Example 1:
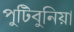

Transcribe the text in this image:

পুটিবুনিয়া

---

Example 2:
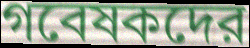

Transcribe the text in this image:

গবেষকদের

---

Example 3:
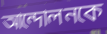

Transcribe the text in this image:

আন্দোলনকে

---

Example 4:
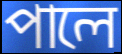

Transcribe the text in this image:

পালে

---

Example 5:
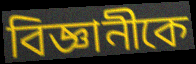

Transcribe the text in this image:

বিজ্ঞানীকে